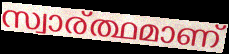
സ്വാര്ത്ഥമാണ്